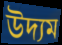
উদ্যম